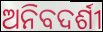
ଅନିବଦର୍ଶୀ